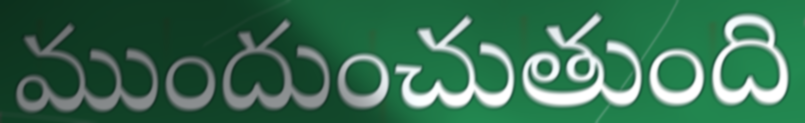
ముందుంచుతుంది